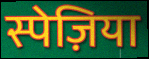
स्पेज़िया